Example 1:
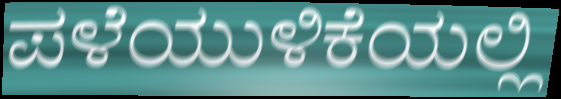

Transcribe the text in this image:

ಪಳೆಯುಳಿಕೆಯಲ್ಲಿ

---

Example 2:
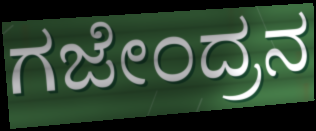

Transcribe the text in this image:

ಗಜೇಂದ್ರನ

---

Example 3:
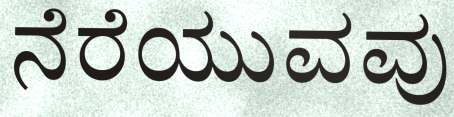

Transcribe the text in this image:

ನೆರೆಯುವವು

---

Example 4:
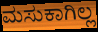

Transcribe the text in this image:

ಮಸುಕಾಗಿಲ್ಲ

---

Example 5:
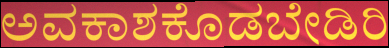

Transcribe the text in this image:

ಅವಕಾಶಕೊಡಬೇಡಿರಿ